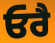
ਓਰੈ